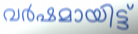
വർഷമായിട്ട്